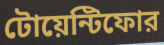
টোয়েন্টিফোর